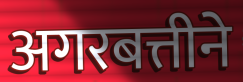
अगरबत्तीने